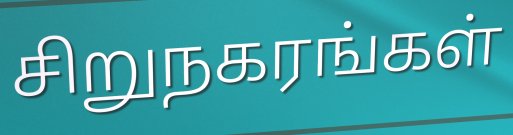
சிறுநகரங்கள்